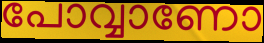
പോവ്വാണോ